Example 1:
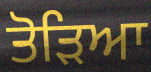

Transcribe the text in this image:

ਤੋਡ਼ਿਆ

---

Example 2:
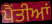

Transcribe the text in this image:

ਪੈਂਤੀਆਂ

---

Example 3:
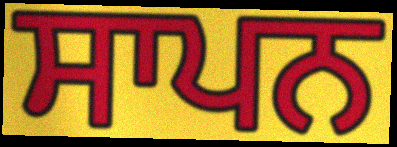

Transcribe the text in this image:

ਸਾਪਨ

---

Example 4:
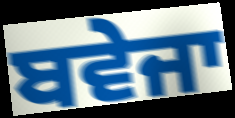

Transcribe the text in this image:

ਬਵੇਜਾ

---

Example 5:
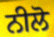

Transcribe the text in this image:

ਨੀਲੋ